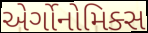
એર્ગોનોમિક્સ